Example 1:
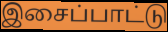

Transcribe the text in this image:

இசைப்பாட்டு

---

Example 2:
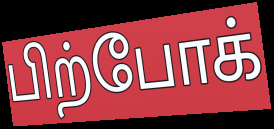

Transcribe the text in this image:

பிற்போக்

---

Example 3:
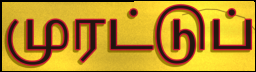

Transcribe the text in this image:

முரட்டுப்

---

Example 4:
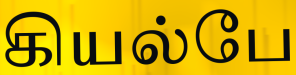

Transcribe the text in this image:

கியல்பே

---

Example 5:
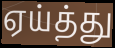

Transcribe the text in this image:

ஏய்த்து